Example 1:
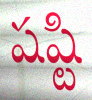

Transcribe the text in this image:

షష్టి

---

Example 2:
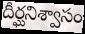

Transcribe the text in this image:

దీర్ఘనిశ్వాసం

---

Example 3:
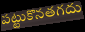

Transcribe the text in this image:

పట్టుకొనతగదు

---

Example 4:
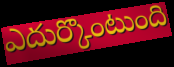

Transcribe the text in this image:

ఎదుర్కొంటుంది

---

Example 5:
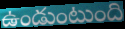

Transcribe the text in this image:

ఉండుంటుంది